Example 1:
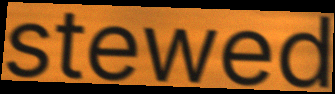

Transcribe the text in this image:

stewed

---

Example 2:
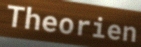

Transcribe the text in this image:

Theorien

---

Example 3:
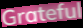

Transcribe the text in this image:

Grateful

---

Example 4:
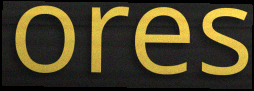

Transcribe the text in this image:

ores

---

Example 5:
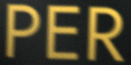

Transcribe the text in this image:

PER